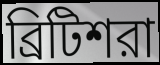
ব্রিটিশরা